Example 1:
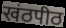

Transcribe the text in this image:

खंठपीठ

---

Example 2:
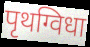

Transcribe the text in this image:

पृथग्विधा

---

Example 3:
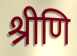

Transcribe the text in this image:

श्रीणि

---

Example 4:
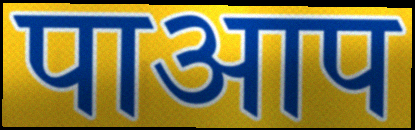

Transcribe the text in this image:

पाआप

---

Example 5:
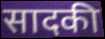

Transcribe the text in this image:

सादकी